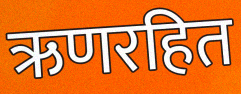
ऋणरहित